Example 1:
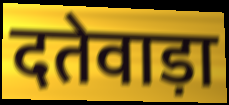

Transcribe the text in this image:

दतेवाड़ा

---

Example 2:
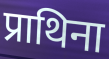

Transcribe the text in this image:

प्राथिना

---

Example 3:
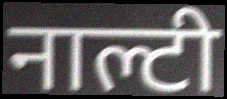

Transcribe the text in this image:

नाल्टी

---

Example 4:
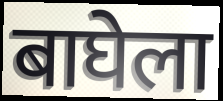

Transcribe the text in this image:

बाघेला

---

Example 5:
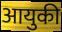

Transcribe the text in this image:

आयुकी